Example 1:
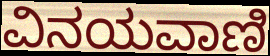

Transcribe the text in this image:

ವಿನಯವಾಣಿ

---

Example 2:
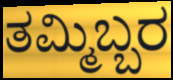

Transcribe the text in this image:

ತಮ್ಮಿಬ್ಬರ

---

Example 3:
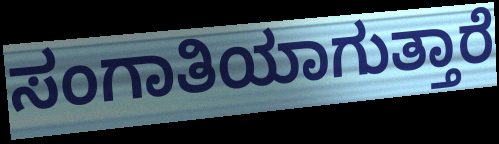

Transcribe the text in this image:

ಸಂಗಾತಿಯಾಗುತ್ತಾರೆ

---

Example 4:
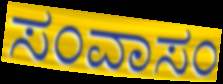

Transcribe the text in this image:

ಸಂವಾಸಂ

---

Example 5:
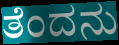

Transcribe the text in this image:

ತೆಂದನು